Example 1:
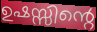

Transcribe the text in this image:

ഉഷസ്സിന്റെ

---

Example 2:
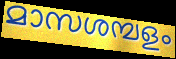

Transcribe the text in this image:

മാസശമ്പളം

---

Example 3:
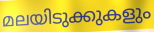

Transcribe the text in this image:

മലയിടുക്കുകളും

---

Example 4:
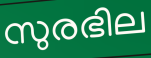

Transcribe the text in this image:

സുരഭില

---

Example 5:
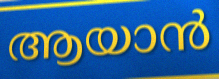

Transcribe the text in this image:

ആയാൻ